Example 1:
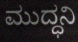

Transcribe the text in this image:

ಮುದ್ಧನಿ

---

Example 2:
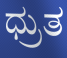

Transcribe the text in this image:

ಧ್ರುತ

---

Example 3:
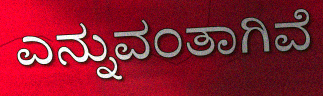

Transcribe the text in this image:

ಎನ್ನುವಂತಾಗಿವೆ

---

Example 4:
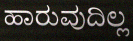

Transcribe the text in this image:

ಹಾರುವುದಿಲ್ಲ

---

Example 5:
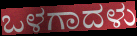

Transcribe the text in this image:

ಒಳಗಾದಳು